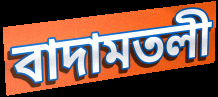
বাদামতলী